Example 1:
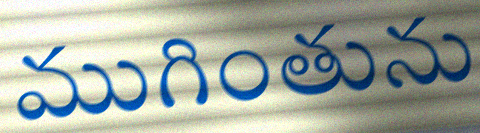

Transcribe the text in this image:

ముగింతును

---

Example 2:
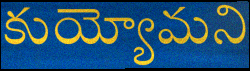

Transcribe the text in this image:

కుయ్యోమని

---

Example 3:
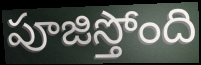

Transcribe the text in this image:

పూజిస్తోంది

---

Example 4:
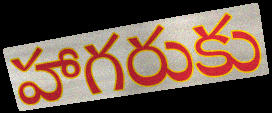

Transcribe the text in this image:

హాగరుకు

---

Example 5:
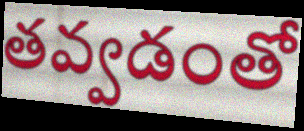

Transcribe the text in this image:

తవ్వడంతో